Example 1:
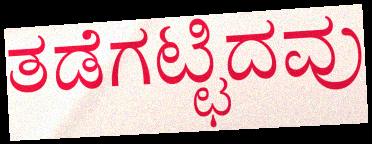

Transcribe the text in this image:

ತಡೆಗಟ್ಟಿದವು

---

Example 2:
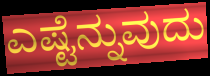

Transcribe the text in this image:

ಎಷ್ಟೆನ್ನುವುದು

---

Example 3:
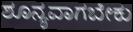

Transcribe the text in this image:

ಶೂನ್ಯವಾಗಬೇಕು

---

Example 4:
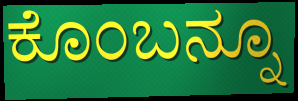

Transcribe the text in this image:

ಕೊಂಬನ್ನೂ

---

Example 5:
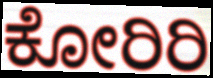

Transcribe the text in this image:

ಕೋರಿರಿ